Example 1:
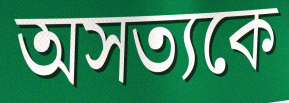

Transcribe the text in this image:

অসত্যকে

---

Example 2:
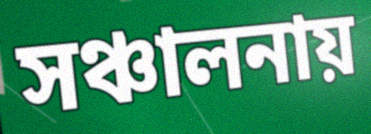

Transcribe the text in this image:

সঞ্চালনায়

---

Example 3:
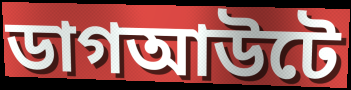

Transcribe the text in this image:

ডাগআউটে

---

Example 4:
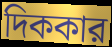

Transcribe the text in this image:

দিককার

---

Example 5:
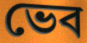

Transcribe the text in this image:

ভেব